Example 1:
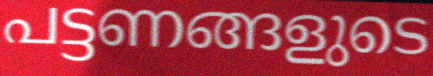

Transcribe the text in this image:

പട്ടണങ്ങളുടെ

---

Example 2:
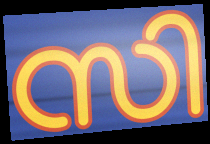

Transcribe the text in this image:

സി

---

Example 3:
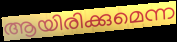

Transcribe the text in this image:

ആയിരിക്കുമെന്ന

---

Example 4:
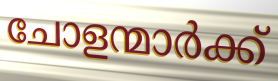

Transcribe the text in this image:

ചോളന്മാർക്ക്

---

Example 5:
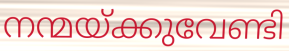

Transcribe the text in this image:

നന്മയ്ക്കുവേണ്ടി